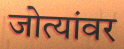
जोत्यांवर